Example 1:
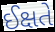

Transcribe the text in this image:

ઈક્ષતે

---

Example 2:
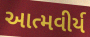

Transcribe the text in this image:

આત્મવીર્ય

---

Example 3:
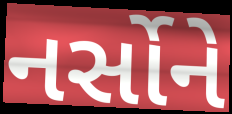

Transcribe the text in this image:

નર્સોને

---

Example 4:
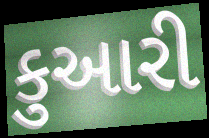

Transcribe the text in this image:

કુઆરી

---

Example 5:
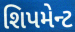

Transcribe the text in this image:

શિપમેન્ટ